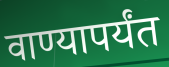
वाण्यापर्यंत